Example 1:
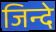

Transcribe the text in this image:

जिन्दे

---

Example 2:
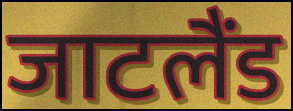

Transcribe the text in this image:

जाटलैंड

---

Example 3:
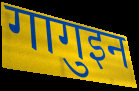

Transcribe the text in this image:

गागुइन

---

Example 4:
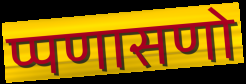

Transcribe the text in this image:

प्पणासणो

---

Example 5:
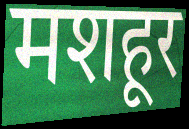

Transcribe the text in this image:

मशहूर